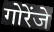
गोरेंजे